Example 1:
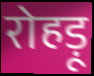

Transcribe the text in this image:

रोहड़ू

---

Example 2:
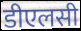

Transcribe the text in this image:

डीएलसी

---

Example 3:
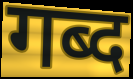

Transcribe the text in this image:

गब्द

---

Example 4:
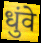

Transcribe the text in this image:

धुंवे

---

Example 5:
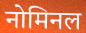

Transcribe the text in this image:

नोमिनल